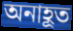
অনাহূত